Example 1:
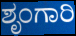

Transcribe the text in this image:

ಶೃಂಗಾರಿ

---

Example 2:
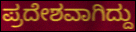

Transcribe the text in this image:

ಪ್ರದೇಶವಾಗಿದ್ದು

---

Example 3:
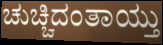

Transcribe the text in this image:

ಚುಚ್ಚಿದಂತಾಯ್ತು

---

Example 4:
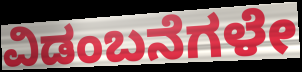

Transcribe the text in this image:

ವಿಡಂಬನೆಗಳೇ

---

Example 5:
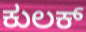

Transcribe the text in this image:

ಕುಲಕ್